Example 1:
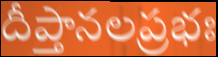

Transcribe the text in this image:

దీప్తానలప్రభః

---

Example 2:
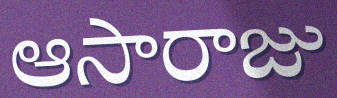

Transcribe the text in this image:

ఆసారాజు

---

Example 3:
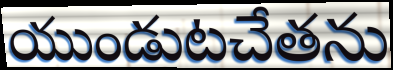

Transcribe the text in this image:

యుండుటచేతను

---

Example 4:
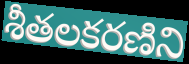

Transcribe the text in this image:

శీతలకరణిని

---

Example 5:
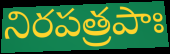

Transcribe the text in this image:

నిరపత్రపాః